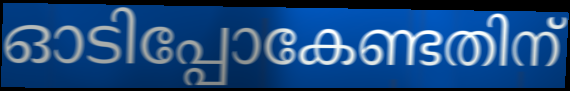
ഓടിപ്പോകേണ്ടതിന്